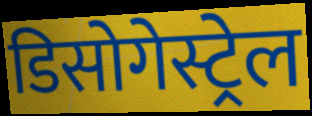
डिसोगेस्ट्रेल